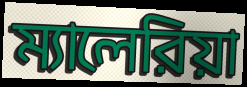
ম্যালেরিয়া